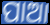
ପାଆ